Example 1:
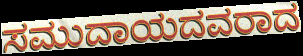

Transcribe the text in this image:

ಸಮುದಾಯದವರಾದ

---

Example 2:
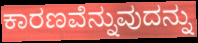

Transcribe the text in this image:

ಕಾರಣವೆನ್ನುವುದನ್ನು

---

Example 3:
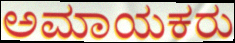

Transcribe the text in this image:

ಅಮಾಯಕರು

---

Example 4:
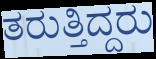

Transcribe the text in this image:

ತರುತ್ತಿದ್ದರು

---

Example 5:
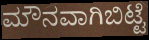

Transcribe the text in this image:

ಮೌನವಾಗಿಬಿಟ್ಟೆ